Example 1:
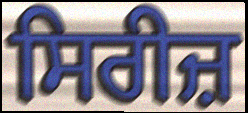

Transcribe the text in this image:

ਸਿਰੀਜ਼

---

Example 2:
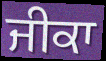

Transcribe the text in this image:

ਜੀਕਾ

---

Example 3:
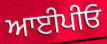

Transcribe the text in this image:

ਆਈਪੀਓ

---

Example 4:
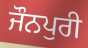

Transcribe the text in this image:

ਜੌਨਪੁਰੀ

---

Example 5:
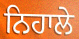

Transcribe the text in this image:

ਨਿਹਾਲੇ